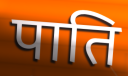
पाति